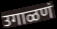
उगाळणं